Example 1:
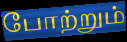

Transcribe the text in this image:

போற்றும்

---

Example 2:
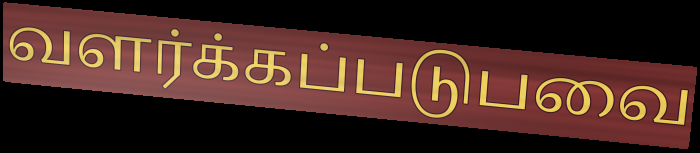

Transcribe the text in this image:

வளர்க்கப்படுபவை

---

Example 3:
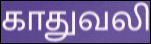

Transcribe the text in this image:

காதுவலி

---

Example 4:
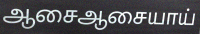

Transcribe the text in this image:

ஆசைஆசையாய்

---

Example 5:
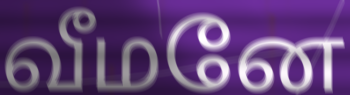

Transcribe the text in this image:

வீமனே